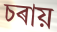
চৰায়